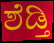
ಶೆಡ್ತಿ